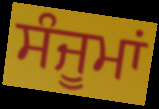
ਸੰਜੂਮਾਂ